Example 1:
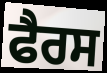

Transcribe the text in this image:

ਫੈਰਸ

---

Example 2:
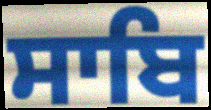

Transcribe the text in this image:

ਸਾਬਿ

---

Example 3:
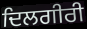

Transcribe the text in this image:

ਦਿਲਗੀਰੀ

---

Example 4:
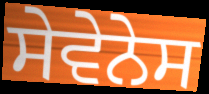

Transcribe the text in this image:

ਸੇਵੇਨੇਸ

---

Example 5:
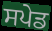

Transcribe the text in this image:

ਸਪੇਡ